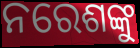
ନରେଶଙ୍କୁ